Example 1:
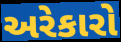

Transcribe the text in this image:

અરેકારો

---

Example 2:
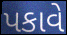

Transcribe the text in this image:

પકાવે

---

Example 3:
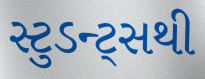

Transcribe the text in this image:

સ્ટુડન્ટ્સથી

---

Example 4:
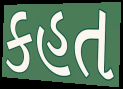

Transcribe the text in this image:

કહત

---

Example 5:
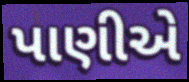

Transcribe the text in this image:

પાણીએ